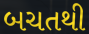
બચતથી